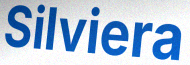
Silviera